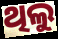
ଥିଲୁ